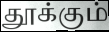
தூக்கும்